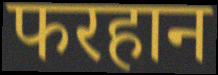
फरहान